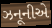
ઝનૂનીએ